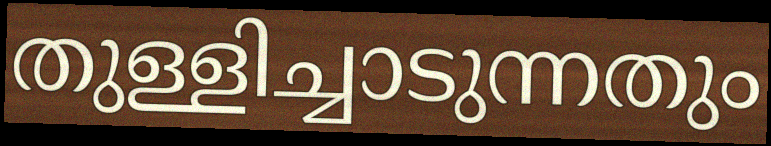
തുള്ളിച്ചാടുന്നതും